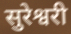
सुरेश्वरी